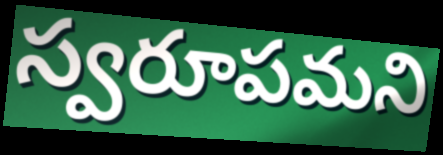
స్వరూపమని